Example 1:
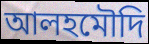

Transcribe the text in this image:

আলহমৌদি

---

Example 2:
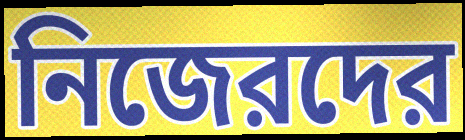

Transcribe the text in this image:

নিজেরদের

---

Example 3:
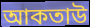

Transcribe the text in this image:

আকতাউ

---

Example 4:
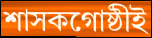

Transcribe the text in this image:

শাসকগোষ্ঠীই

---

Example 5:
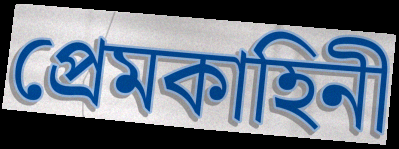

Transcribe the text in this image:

প্রেমকাহিনী